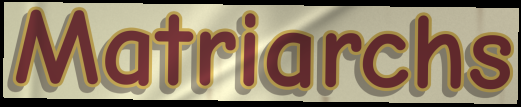
Matriarchs